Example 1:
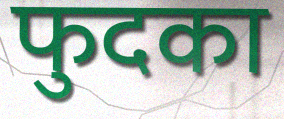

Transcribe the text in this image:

फुदका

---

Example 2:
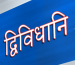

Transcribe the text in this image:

द्विविधानि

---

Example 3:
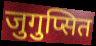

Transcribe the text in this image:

जुगुप्सित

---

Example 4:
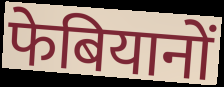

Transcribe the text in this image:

फेबियानों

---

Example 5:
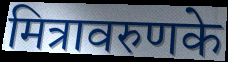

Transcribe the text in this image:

मित्रावरुणके